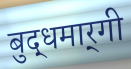
बुद्धमार्गी